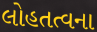
લોહતત્વના